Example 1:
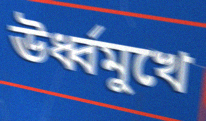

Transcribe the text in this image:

ঊর্ধ্বমুখে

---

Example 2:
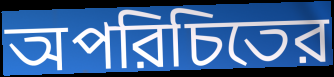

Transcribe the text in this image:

অপরিচিতের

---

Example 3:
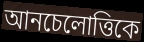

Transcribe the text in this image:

আনচেলোত্তিকে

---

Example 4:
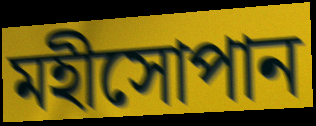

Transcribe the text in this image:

মহীসোপান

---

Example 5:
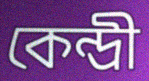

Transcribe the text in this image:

কেন্দ্রী